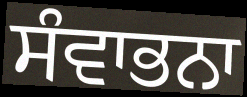
ਸੰਵਾਭਨਾ